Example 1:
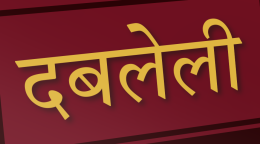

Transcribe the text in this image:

दबलेली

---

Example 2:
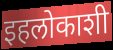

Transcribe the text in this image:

इहलोकाशी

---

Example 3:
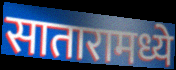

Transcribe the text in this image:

सातारामध्ये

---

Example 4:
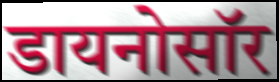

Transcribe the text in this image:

डायनोसॉर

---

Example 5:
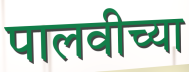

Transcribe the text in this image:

पालवीच्या